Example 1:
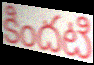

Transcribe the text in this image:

కిందటి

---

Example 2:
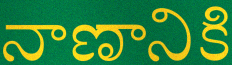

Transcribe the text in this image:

నాణానికి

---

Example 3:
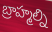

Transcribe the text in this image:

బ్రాహ్మల్ని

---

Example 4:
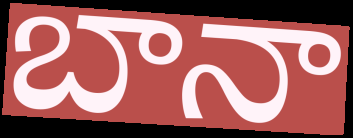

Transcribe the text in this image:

బానా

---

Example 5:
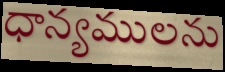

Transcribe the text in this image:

ధాన్యములను